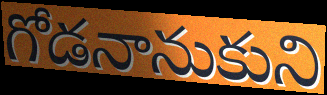
గోడనానుకుని